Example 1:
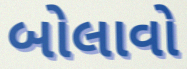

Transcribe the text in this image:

બોલાવો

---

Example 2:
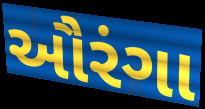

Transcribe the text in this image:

ઔરંગા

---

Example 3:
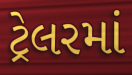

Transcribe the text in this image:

ટ્રેલરમાં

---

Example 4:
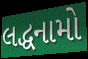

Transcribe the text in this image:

લદ્ધનામો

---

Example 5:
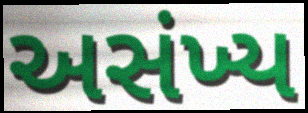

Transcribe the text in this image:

અસંખ્ય